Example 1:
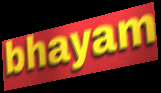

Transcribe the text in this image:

bhayam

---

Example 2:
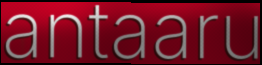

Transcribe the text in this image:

antaaru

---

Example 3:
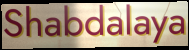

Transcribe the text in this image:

Shabdalaya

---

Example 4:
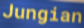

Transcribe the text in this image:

Jungian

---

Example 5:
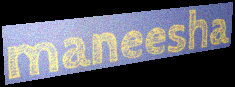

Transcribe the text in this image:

maneesha